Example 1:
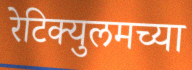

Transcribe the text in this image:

रेटिक्युलमच्या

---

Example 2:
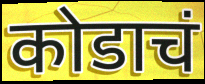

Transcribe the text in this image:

कोडाचं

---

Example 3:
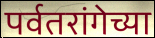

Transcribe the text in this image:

पर्वतरांगेच्या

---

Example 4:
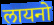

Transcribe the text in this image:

लायनो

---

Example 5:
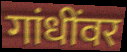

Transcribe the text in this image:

गांधींवर